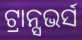
ଟ୍ରାନ୍ସଭର୍ସ